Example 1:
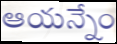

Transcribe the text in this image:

ఆయన్నేం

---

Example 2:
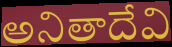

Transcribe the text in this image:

అనితాదేవి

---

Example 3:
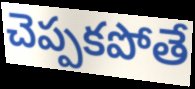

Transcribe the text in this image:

చెప్పకపోతే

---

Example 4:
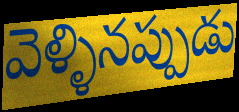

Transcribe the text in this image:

వెళ్ళినప్పుడు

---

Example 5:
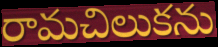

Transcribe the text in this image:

రామచిలుకను